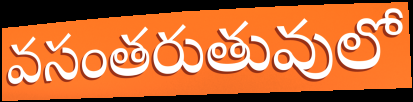
వసంతరుతువులో